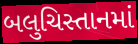
બલુચિસ્તાનમાં